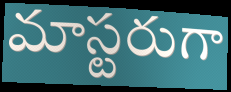
మాస్టరుగా